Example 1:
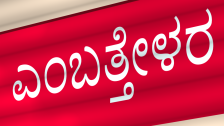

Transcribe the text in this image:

ಎಂಬತ್ತೇಳರ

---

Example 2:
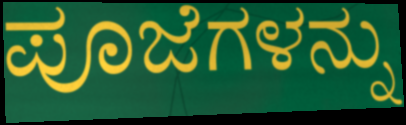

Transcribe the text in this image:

ಪೂಜೆಗಳನ್ನು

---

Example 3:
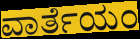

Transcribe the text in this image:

ವಾರ್ತೆಯಂ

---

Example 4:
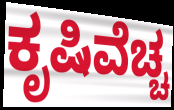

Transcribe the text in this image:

ಕೃಷಿವೆಚ್ಚ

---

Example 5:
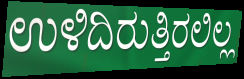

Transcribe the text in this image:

ಉಳಿದಿರುತ್ತಿರಲಿಲ್ಲ